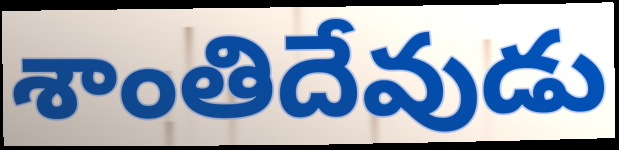
శాంతిదేవుడు